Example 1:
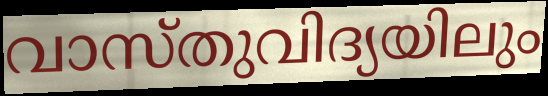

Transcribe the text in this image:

വാസ്തുവിദ്യയിലും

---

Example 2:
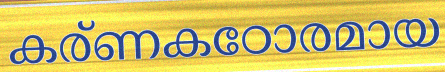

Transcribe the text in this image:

കര്ണകഠോരമായ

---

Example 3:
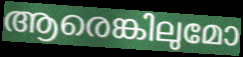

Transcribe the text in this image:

ആരെങ്കിലുമോ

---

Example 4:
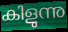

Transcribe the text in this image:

കിളുന്നു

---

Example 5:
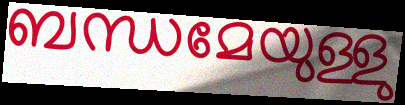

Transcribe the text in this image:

ബന്ധമേയുള്ളു